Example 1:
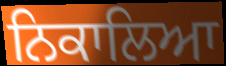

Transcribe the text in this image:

ਨਿਕਾਲਿਆ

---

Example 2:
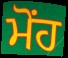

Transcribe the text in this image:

ਮੋਂਹ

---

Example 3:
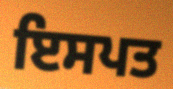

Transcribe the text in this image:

ਇਸਪਤ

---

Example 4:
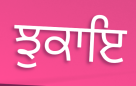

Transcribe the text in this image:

ਝੁਕਾਇ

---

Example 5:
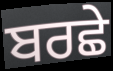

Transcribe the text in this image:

ਬਰਛੇ